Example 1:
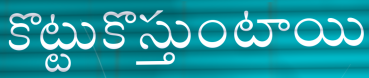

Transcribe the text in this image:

కొట్టుకొస్తుంటాయి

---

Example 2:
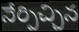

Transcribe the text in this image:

నేర్పిచ్చిన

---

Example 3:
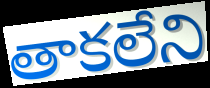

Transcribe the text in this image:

తాకలేని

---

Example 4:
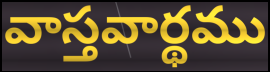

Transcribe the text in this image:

వాస్తవార్థము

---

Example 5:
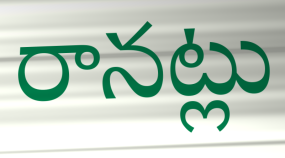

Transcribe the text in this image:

రానట్లు